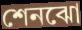
শেনঝো